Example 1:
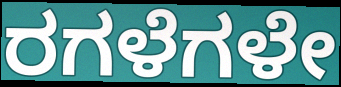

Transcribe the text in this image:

ರಗಳೆಗಳೇ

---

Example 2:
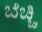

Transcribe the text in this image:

ಬೆಚ್ಚಿ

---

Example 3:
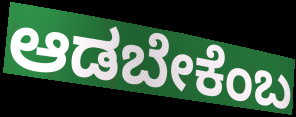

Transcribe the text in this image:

ಆಡಬೇಕೆಂಬ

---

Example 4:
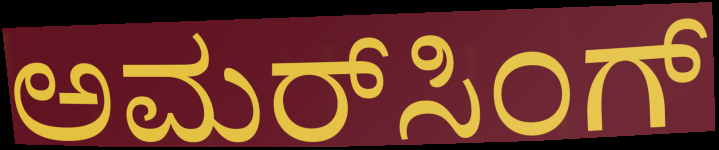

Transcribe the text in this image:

ಅಮರ್‌ಸಿಂಗ್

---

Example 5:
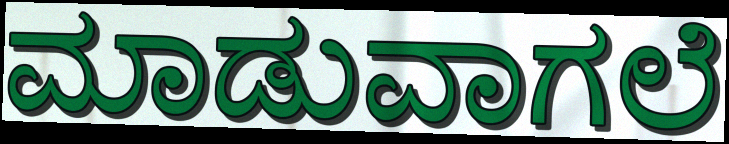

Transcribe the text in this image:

ಮಾಡುವಾಗಲೆ